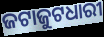
ଜଟାଜୁଟଧାରୀ